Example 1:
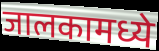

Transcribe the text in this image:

जालकामध्ये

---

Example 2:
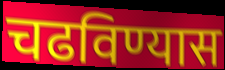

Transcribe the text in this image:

चढविण्यास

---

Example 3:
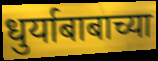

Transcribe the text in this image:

धुर्याबाबाच्या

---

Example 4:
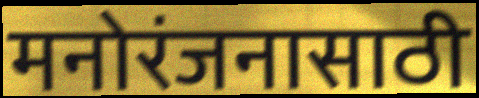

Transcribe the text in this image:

मनोरंजनासाठी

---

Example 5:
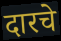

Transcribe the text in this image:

दारचे